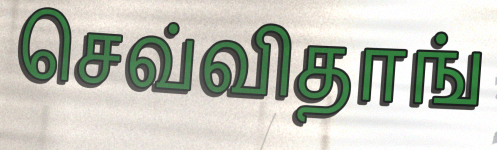
செவ்விதாங்